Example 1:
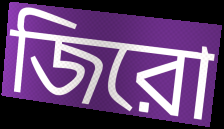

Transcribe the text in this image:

জিরো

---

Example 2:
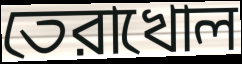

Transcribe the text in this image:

তেরাখোল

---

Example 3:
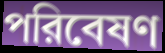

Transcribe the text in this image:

পরিবেষণ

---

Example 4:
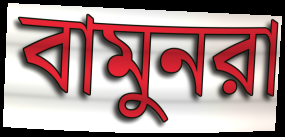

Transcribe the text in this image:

বামুনরা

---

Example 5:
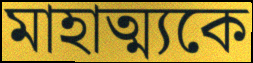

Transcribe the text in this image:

মাহাত্ম্যকে